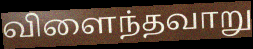
விளைந்தவாறு